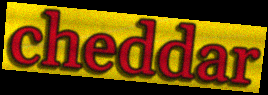
cheddar